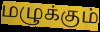
மழுக்கும்